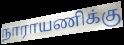
நாராயணிக்கு